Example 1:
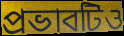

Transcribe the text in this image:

প্রভাবটিও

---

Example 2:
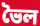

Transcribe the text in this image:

ভৈল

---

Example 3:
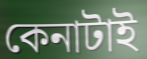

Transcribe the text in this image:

কেনাটাই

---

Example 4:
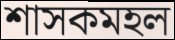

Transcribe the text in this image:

শাসকমহল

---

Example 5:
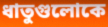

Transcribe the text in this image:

ধাতুগুলোকে